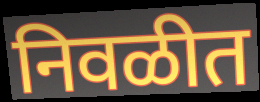
निवळीत